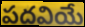
పదవియే